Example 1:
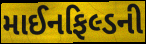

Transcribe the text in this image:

માઈનફિલ્ડની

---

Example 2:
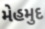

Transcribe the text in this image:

મેહમુદ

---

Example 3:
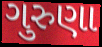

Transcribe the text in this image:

ગુરુણા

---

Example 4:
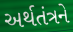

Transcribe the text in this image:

અર્થતંત્રને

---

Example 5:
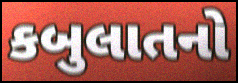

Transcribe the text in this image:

કબુલાતનો